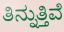
ತಿನ್ನುತ್ತಿವೆ